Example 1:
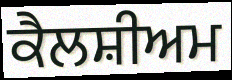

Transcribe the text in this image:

ਕੈਲਸ਼ੀਅਮ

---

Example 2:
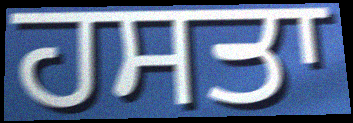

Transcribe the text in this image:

ਹਸਤਾ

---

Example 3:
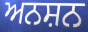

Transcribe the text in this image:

ਅਨਸ਼ਨ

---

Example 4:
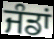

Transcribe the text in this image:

ਜੰਡਾਂ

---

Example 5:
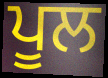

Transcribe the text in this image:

ਪੂਲ